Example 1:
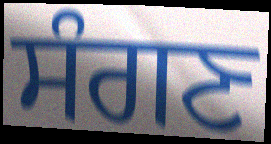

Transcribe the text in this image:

ਸੰਗਣ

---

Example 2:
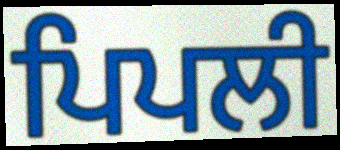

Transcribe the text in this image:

ਪਿਪਲੀ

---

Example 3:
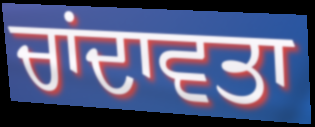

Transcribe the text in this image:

ਚਾਂਦਾਵਤਾ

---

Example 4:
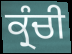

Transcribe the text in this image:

ਕ੍ਰੰਚੀ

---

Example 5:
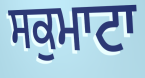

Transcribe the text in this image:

ਸਕੁਮਾਟਾ